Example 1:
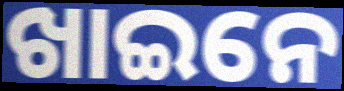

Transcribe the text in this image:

ଖାଇନେ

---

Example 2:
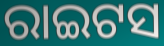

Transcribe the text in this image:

ରାଇଟସ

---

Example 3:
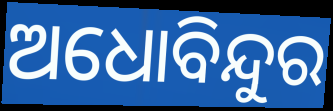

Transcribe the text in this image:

ଅଧୋବିନ୍ଦୁର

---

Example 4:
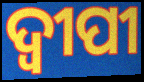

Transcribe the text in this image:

ଦ୍ଵୀପୀ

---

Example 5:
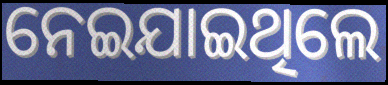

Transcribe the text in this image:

ନେଇଯାଇଥିଲେ